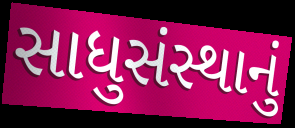
સાધુસંસ્થાનું